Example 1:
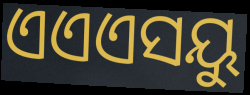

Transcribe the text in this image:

ଏଏଏସୟୁ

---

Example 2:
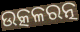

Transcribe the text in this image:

ଉତ୍କଳରତ୍ନ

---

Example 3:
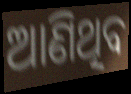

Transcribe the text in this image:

ଆଣିଥିବ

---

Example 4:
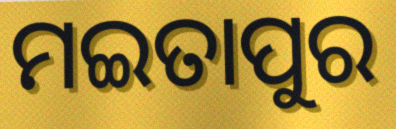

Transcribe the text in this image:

ମଇତାପୁର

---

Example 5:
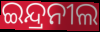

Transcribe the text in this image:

ଇନ୍ଦ୍ରନୀଲ